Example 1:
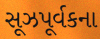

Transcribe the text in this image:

સૂઝપૂર્વકના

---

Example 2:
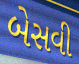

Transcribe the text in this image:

બેસવી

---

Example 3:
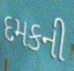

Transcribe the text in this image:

દમકની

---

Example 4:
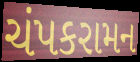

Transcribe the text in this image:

ચંપકરામન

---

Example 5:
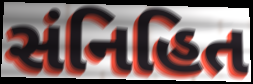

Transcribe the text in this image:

સંનિહિત